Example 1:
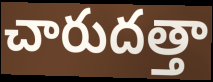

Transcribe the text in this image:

చారుదత్తా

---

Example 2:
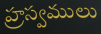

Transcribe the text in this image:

హ్రస్వములు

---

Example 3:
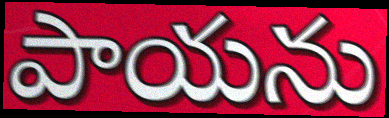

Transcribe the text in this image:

పాయను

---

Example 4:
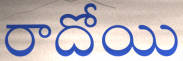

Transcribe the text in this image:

రాదోయి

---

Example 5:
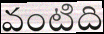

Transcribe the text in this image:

వంటిది